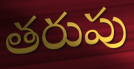
తరుపు